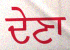
ਦੇਣਾ